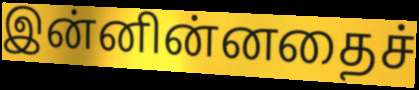
இன்னின்னதைச்